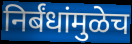
निर्बंधांमुळेच